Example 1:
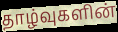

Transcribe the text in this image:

தாழ்வுகளின்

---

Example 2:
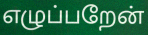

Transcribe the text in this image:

எழுப்பறேன்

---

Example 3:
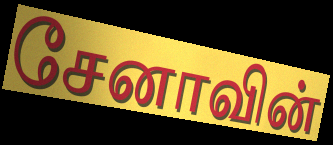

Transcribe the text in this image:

சேனாவின்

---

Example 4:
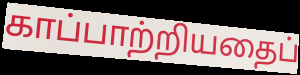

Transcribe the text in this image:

காப்பாற்றியதைப்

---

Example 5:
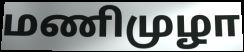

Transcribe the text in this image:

மணிமுழா